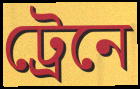
ট্রেনে